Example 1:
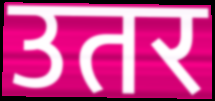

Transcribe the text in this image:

उतर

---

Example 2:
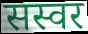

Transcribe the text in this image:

सस्वर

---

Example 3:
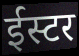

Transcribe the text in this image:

ईस्टर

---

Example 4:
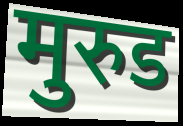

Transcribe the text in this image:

मुरुड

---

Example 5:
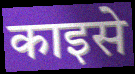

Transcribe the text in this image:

काइसे